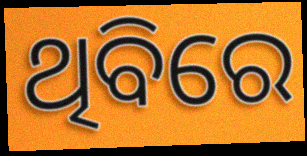
ଥିବିରେ